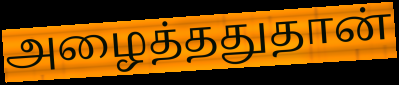
அழைத்ததுதான்